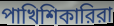
পাখিশিকারিরা